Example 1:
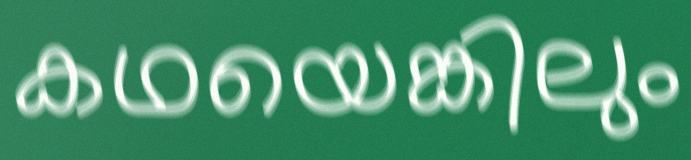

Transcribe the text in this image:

കഥയെങ്കിലും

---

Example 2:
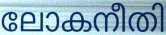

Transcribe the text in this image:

ലോകനീതി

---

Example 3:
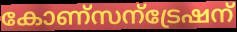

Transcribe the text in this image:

കോണ്സന്ട്രേഷന്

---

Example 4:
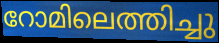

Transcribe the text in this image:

റോമിലെത്തിച്ചു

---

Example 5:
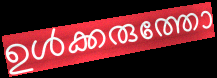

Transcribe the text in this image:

ഉൾക്കരുത്തോ